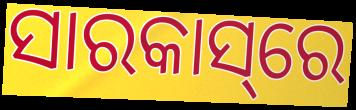
ସାରକାସ୍‌ରେ